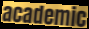
academic